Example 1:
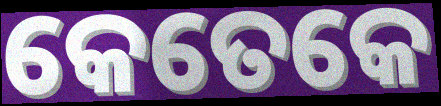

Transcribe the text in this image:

କେତେକେ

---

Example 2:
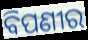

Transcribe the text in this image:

ବିପଣୀର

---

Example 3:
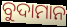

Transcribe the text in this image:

ବୁଦାମାନ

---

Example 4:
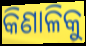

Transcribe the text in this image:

କିଣାଳିକୁ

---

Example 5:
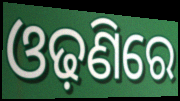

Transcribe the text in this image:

ଓଢ଼ଣିରେ